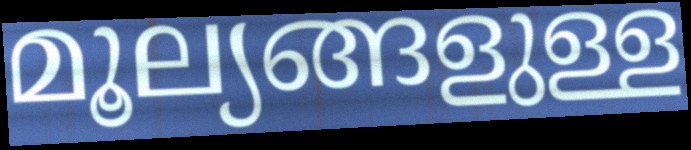
മൂല്യങ്ങളുള്ള